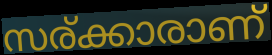
സര്ക്കാരാണ്